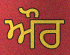
ਔਰ